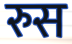
रुस